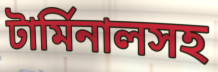
টার্মিনালসহ